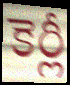
కెర్లీ